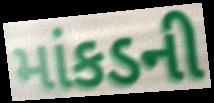
માંકડની